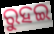
ରୁହଇ